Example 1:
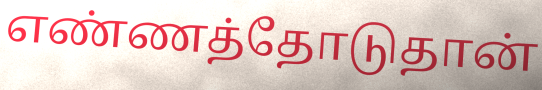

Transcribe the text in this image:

எண்ணத்தோடுதான்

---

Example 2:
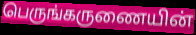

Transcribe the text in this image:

பெருங்கருணையின்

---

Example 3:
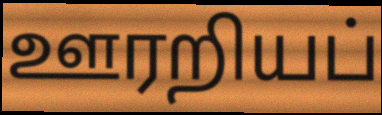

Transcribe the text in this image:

ஊரறியப்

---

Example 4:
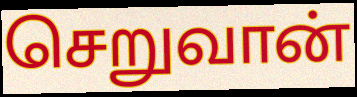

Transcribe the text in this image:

செறுவான்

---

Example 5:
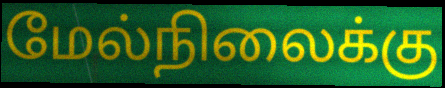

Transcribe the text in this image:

மேல்நிலைக்கு